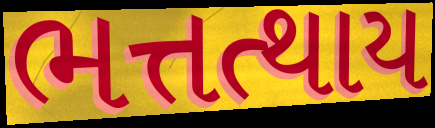
ભત્તત્થાય